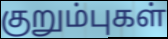
குறும்புகள்